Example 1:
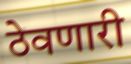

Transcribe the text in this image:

ठेवणारी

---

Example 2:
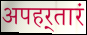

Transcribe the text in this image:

अपहर्तारं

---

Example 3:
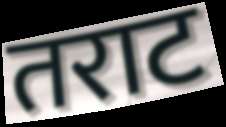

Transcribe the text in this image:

तराट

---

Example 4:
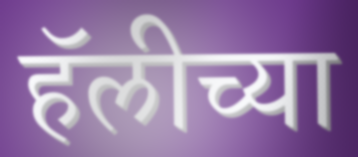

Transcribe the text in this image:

हॅलीच्या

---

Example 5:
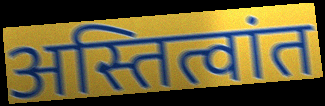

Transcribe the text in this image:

अस्तित्वांत